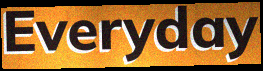
Everyday